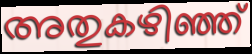
അതുകഴിഞ്ഞ്